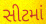
સીટમાં